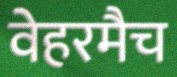
वेहरमैच